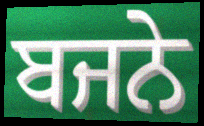
ਬਜਨੇ